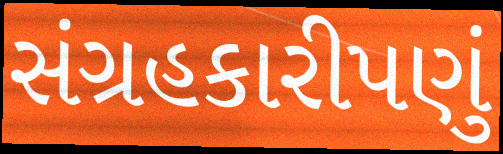
સંગ્રહકારીપણું